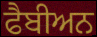
ਫੈਬੀਅਨ